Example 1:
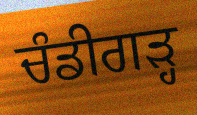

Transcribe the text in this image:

ਚੰਡੀਗਡ਼੍ਹ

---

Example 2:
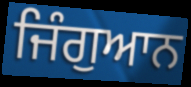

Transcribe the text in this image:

ਜਿੰਗੁਆਨ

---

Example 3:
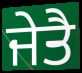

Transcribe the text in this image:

ਜੇਤੈ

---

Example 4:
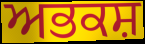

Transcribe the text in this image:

ਅਭਕਸ਼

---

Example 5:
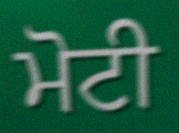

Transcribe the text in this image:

ਮੋਟੀ